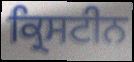
ਕ੍ਰਿਸਟੀਨ